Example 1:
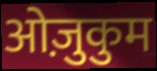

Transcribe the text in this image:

ओज़ुकुम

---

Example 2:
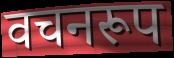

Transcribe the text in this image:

वचनरूप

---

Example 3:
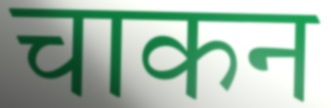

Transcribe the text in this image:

चाकन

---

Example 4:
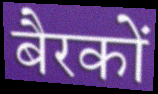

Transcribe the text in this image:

बैरकों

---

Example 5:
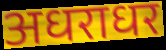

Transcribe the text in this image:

अधराधर